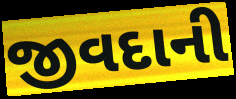
જીવદાની